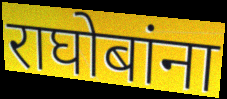
राघोबांना